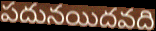
పదునయిదవది